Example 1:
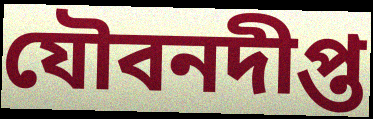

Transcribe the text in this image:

যৌবনদীপ্ত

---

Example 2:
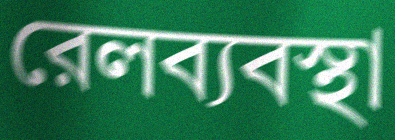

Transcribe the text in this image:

রেলব্যবস্থা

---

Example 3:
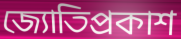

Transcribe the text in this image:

জ্যোতিপ্রকাশ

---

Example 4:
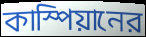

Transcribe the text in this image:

কাস্পিয়ানের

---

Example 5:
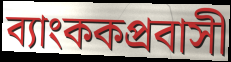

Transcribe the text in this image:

ব্যাংককপ্রবাসী